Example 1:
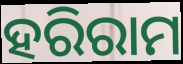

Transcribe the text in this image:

ହରିରାମ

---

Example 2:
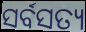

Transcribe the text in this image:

ସର୍ବସତ୍ୟ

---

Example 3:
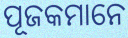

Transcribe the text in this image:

ପୂଜକମାନେ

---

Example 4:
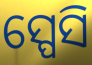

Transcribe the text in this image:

ସ୍ପେସି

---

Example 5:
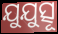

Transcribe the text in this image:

ଯୁଯୁତ୍ସୂ